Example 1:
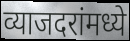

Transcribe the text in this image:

व्याजदरांमध्ये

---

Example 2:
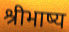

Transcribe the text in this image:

श्रीभाष्य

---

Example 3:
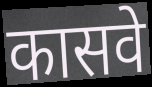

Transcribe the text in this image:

कासवे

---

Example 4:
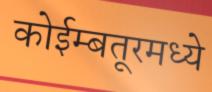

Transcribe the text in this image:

कोईम्बतूरमध्ये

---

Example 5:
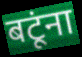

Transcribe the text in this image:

बटूंना